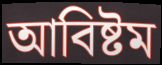
আবিষ্টম